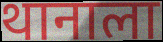
थानाला